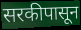
सरकीपासून